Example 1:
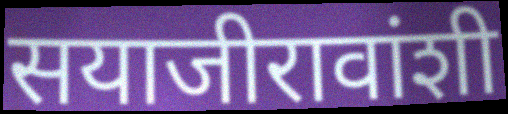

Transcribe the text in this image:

सयाजीरावांशी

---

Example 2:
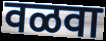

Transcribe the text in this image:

वळवा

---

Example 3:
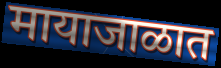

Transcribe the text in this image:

मायाजाळात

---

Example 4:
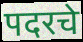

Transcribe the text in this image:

पदरचे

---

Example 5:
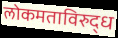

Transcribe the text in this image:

लोकमताविरुद्ध